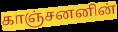
காஞ்சனனின்